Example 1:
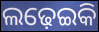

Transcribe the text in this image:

ଲଢ଼େଇକି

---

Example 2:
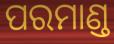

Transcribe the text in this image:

ପରମାଣ୍ଡ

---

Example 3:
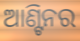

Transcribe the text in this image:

ଆଣ୍ଟିନର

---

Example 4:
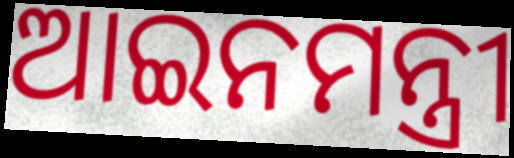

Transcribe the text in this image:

ଆଇନମନ୍ତ୍ରୀ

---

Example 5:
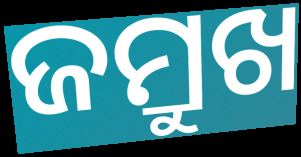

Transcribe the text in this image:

ଜମ୍ରୁଖ